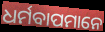
ଧର୍ମବାପମାନେ